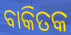
ବାକିତକ